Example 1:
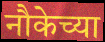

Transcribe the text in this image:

नौकेच्या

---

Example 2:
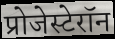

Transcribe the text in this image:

प्रोजेस्टेरॉन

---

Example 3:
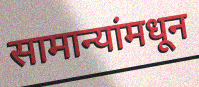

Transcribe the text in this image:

सामान्यांमधून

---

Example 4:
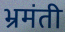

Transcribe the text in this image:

भ्रमंती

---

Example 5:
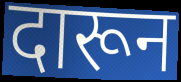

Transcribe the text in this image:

दारून